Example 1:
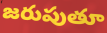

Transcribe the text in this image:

జరుపుతూ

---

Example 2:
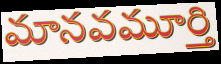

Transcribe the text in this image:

మానవమూర్తి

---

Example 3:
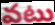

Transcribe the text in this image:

వటు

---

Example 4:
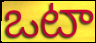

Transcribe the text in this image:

ఒటా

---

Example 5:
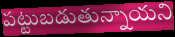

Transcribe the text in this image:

పట్టుబడుతున్నాయని